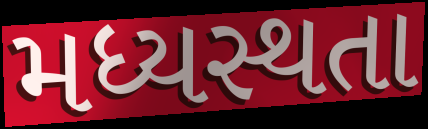
મધ્યસ્થતા